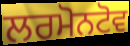
ਲਰਮੋਨਟੋਵ